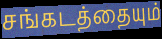
சங்கடத்தையும்